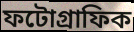
ফটোগ্ৰাফিক